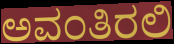
ಅವಂತಿರಲಿ